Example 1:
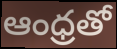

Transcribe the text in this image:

ఆంధ్రతో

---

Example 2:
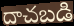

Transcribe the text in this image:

దాచబడి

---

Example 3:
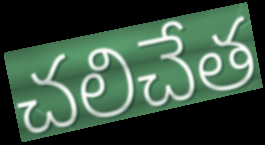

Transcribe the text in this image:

చలిచేత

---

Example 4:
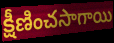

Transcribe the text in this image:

క్షీణించసాగాయి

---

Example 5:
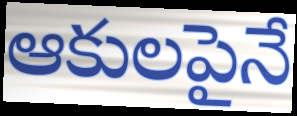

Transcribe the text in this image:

ఆకులపైనే